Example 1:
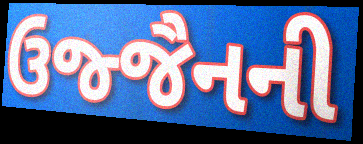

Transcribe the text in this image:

ઉજ્જૈનની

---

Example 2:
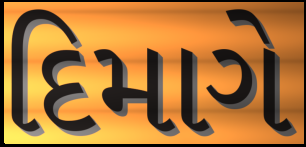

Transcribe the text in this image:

દિમાગે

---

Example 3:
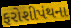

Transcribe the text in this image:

ફરોશીપંથના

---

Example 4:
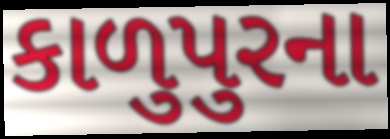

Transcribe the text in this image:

કાળુપુરના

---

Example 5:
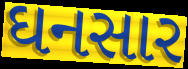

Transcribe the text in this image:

ઘનસાર